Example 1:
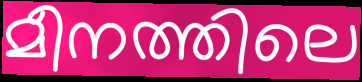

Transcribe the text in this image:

മീനത്തിലെ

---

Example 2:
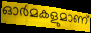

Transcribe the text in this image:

ഓർമകളുമാണ്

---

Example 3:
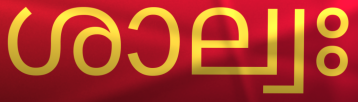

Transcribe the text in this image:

ശാല്വഃ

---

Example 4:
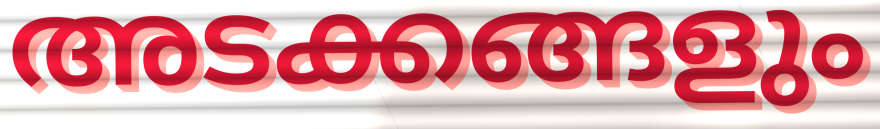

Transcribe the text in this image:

അടക്കങ്ങളും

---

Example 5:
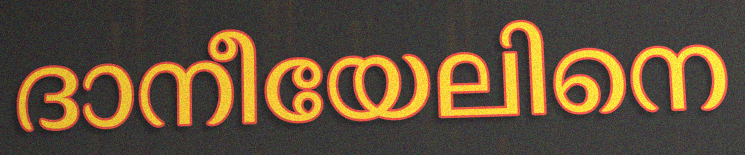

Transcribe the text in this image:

ദാനീയേലിനെ